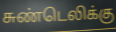
சுண்டெலிக்கு